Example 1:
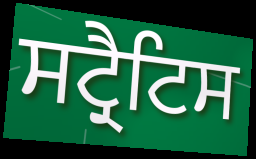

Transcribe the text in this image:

ਸਟ੍ਰੈਟਿਸ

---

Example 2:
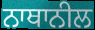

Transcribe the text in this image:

ਨਾਥਾਨੀਲ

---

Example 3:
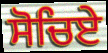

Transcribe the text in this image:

ਸੋਚਿਏ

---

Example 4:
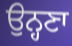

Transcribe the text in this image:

ਉਨ੍ਹਣਾ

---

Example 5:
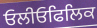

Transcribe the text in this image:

ਓਲੀਓਫਿਲਿਕ